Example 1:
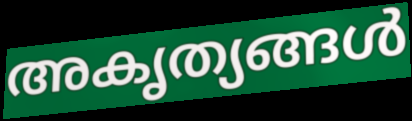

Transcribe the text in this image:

അകൃത്യങ്ങൾ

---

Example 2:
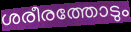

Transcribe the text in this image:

ശരീരത്തോടും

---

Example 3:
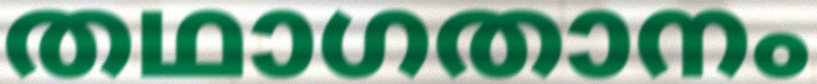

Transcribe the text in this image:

തഥാഗതാനം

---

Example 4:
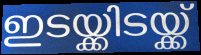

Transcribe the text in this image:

ഇടയ്ക്കിടയ്ക്ക്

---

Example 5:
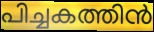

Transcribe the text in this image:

പിച്ചകത്തിൻ